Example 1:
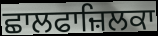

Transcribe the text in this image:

ਛਾਲਫਾਜ਼ਿਲਕਾ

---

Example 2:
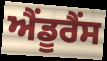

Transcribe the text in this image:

ਐਂਡੂਰੈਂਸ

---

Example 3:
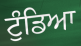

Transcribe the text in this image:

ਟੁੰਡਿਆ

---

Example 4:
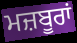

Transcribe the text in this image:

ਮਜ਼ਬੂਰਾਂ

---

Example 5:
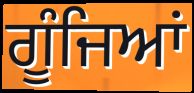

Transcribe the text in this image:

ਗੂੰਜਿਆਂ